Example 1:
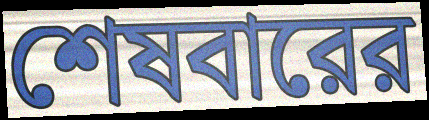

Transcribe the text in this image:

শেষবারের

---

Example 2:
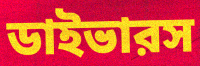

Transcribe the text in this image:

ডাইভারস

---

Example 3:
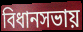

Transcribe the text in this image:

বিধানসভায়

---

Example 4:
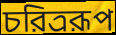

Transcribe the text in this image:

চরিত্ররূপ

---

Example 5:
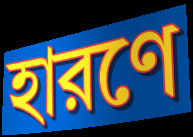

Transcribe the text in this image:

হারণে